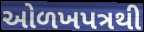
ઓળખપત્રથી